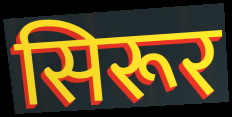
सिरूर